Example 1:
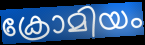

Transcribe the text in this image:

ക്രോമിയം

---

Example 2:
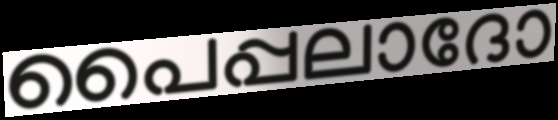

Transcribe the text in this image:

പൈപ്പലാദോ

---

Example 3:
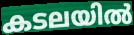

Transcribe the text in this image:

കടലയിൽ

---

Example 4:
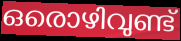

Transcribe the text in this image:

ഒരൊഴിവുണ്ട്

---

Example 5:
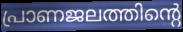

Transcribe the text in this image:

പ്രാണജലത്തിന്റെ